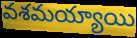
వశమయ్యాయి